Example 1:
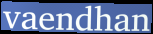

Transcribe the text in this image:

vaendhan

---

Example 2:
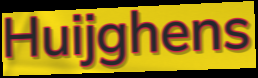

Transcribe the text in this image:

Huijghens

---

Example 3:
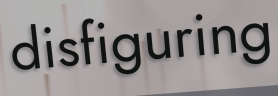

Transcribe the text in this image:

disfiguring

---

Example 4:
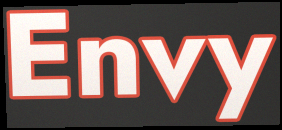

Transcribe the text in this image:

Envy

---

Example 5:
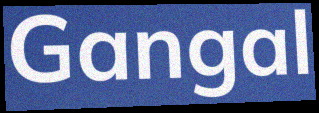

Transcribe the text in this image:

Gangal